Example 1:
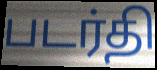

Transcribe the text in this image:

படர்தி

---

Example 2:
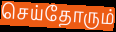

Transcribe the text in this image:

செய்தோரும்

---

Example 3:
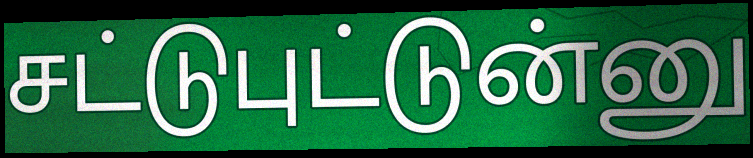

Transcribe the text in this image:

சட்டுபுட்டுன்னு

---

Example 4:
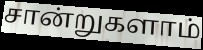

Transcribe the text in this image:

சான்றுகளாம்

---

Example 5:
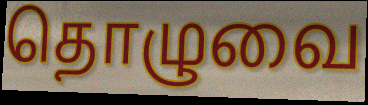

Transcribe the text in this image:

தொழுவை